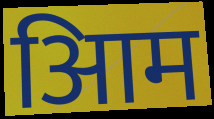
आिम